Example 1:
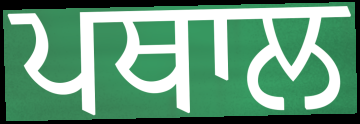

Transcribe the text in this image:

ਪਥਾਲ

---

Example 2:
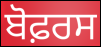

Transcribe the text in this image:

ਬੋਫ਼ਰਸ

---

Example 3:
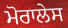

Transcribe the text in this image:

ਮੋਰਾਲੇਸ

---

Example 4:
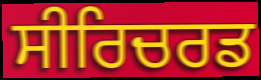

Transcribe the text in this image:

ਸੀਰਿਚਰਡ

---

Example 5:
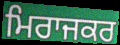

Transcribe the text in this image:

ਮਿਰਾਜਕਰ